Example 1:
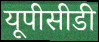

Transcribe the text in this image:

यूपीसीडी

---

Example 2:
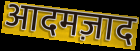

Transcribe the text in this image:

आदमज़ाद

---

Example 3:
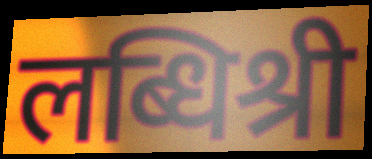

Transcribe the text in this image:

लब्धिश्री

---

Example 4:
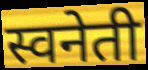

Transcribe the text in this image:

स्वनेती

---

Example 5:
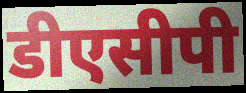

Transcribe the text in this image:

डीएसीपी